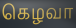
கெழவா